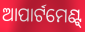
ଆପାର୍ଟମେଣ୍ଟ୍